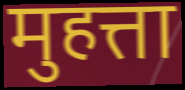
मुहत्ता